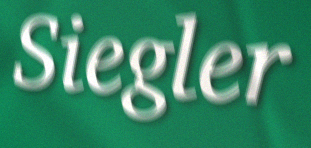
Siegler